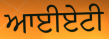
ਆਈਏਟੀ